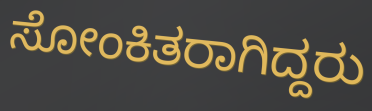
ಸೋಂಕಿತರಾಗಿದ್ದರು